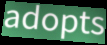
adopts